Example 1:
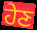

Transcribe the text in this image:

ਹੇਣ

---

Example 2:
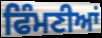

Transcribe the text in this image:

ਫਿੰਮਣੀਆਂ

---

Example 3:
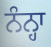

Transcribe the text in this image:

ਨੰਨ੍ਹਾ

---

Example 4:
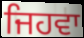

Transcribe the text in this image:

ਜਿਹਵਾ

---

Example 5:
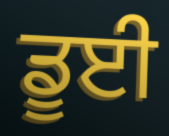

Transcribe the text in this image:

ਡੂਈ